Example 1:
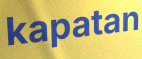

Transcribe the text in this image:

kapatan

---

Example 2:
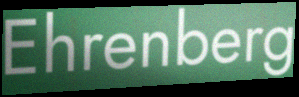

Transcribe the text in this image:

Ehrenberg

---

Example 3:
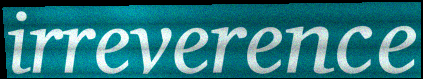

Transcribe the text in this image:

irreverence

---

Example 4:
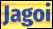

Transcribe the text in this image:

Jagoi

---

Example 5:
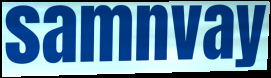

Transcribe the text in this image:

samnvay